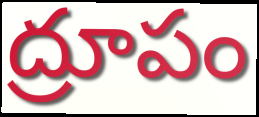
ద్రూపం